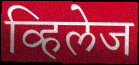
व्हिलेज